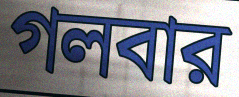
গলবার